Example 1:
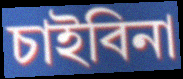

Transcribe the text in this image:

চাইবিনা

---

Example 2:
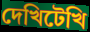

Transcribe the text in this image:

দেখিটেখি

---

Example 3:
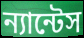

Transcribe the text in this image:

ন্যান্টেস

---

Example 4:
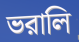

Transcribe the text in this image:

ভরালি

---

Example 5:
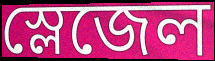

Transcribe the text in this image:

স্লেজেল